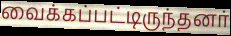
வைக்கப்பட்டிருந்தனர்